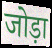
जोड़ा